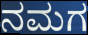
ನಮಗ